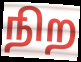
நிற